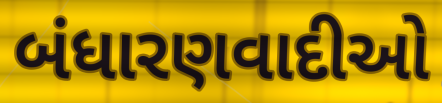
બંધારણવાદીઓ